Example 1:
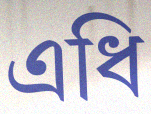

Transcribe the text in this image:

এধি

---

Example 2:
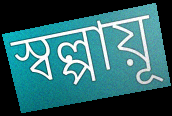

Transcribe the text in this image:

স্বল্পায়ূ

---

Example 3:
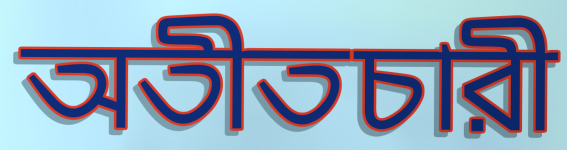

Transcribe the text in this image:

অতীতচারী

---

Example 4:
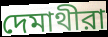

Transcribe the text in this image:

দেমাথীরা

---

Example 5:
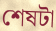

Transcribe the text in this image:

শেষটা